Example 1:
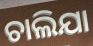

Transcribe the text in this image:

ଚାଲିଯା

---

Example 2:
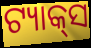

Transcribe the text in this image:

ଟ୍ୟାକ୍‌ସ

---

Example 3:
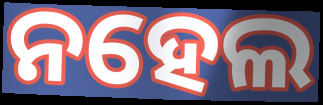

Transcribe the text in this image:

ନହେଲ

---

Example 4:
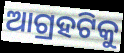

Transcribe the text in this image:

ଆଗ୍ରହଟିକୁ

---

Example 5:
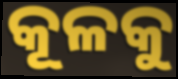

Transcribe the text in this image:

କୂଳକୁ